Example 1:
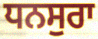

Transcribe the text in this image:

ਧਨਸੁਰਾ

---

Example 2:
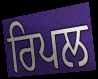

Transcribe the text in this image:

ਰਿਪਲ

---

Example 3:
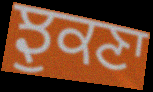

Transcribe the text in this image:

ਝੁਕਣਾ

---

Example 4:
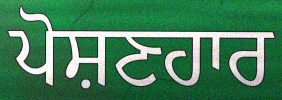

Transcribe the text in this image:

ਪੋਸ਼ਣਹਾਰ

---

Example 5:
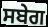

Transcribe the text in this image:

ਸਬੇਗ